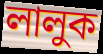
লালুক